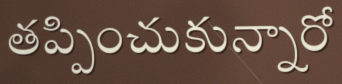
తప్పించుకున్నారో